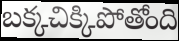
బక్కచిక్కిపోతోంది